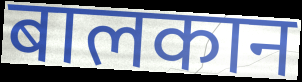
बालकान